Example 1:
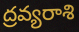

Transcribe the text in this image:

ద్రవ్యరాశి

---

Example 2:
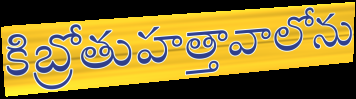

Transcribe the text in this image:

కిబ్రోతుహత్తావాలోను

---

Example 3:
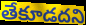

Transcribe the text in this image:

తేకూడదని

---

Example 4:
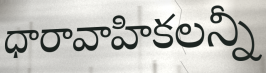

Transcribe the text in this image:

ధారావాహికలన్నీ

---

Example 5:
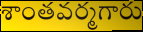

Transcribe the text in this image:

శాంతవర్మగారు